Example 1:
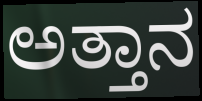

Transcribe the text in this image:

ಅತ್ತಾನ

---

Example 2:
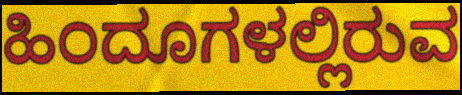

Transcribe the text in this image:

ಹಿಂದೂಗಳಲ್ಲಿರುವ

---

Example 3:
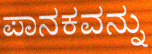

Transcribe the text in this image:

ಪಾನಕವನ್ನು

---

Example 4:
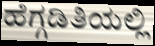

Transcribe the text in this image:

ಹೆಗ್ಗಡಿತಿಯಲ್ಲಿ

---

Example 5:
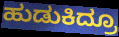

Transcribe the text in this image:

ಹುಡುಕಿದ್ರೂ